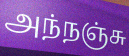
அந்நஞ்சு